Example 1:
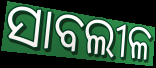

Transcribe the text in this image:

ସାବଲୀଳ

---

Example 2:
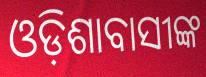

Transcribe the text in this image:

ଓଡ଼ିଶାବାସୀଙ୍କ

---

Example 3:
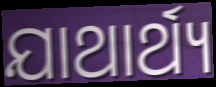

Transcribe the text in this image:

ଯାଥାର୍ଥ୍ୟ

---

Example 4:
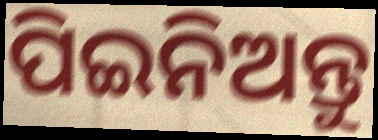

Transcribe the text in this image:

ପିଇନିଅନ୍ତୁ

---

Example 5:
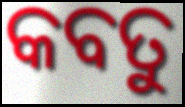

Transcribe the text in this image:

କବତୁ